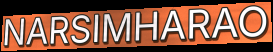
NARSIMHARAO